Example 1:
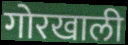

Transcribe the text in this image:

गोरखाली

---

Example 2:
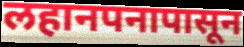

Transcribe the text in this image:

लहानपनापासून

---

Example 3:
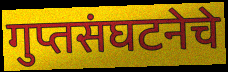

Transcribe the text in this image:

गुप्तसंघटनेचे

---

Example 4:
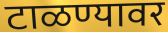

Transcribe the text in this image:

टाळण्यावर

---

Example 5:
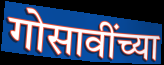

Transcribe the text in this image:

गोसावींच्या